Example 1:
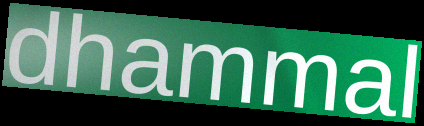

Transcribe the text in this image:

dhammal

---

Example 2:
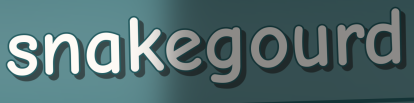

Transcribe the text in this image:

snakegourd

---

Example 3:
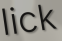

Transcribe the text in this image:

lick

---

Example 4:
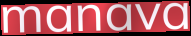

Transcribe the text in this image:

manava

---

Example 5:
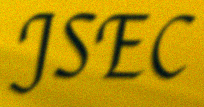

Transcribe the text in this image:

JSEC